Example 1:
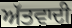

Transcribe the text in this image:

ਅੱਤਵਾਦੀ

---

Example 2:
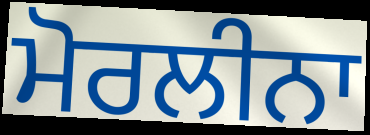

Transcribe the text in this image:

ਮੋਰਲੀਨਾ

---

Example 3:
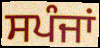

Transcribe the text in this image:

ਸਪੰਜਾਂ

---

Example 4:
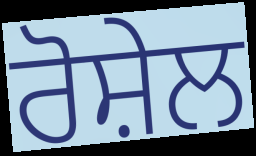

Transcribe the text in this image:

ਰੋਸ਼ੇਲ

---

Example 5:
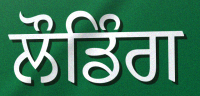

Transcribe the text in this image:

ਲੌਡਿੰਗ